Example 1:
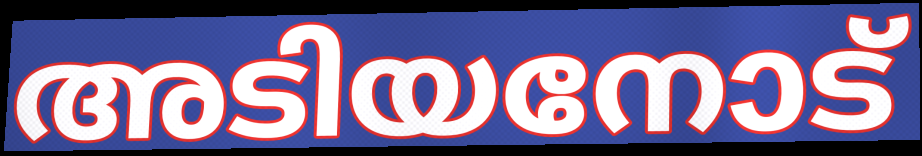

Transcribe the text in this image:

അടിയനോട്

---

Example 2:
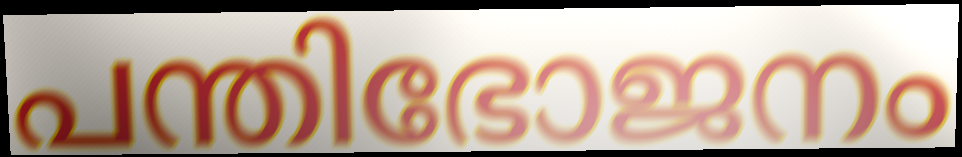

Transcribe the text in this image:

പന്തിഭോജനം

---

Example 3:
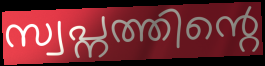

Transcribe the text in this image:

സ്വപ്നത്തിന്റെ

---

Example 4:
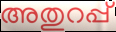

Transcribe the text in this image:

അതുറപ്പ്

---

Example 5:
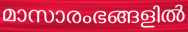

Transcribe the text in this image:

മാസാരംഭങ്ങളിൽ